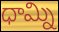
ధామ్ని